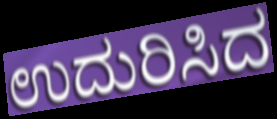
ಉದುರಿಸಿದ